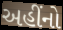
અહીંનો